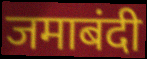
जमाबंदी